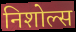
निशोल्स